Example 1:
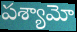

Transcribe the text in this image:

పశ్యామో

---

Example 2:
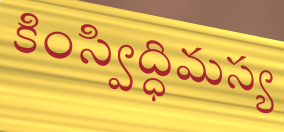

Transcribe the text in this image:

కింస్విద్ధిమస్య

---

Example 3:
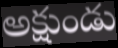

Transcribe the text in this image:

అక్షుండు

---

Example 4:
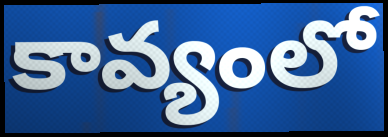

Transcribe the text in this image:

కావ్యంలో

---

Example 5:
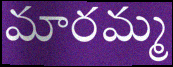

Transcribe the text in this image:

మారమ్మ